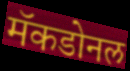
मॅकडोनल